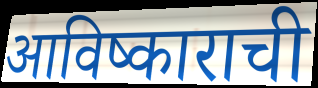
आविष्काराची